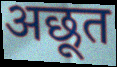
अछूत